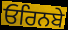
ਓਰਿਨਬੇ